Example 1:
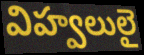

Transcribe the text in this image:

విహ్వలులై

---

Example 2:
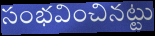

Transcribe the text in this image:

సంభవించినట్టు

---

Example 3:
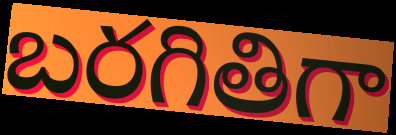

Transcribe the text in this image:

బరగితిగా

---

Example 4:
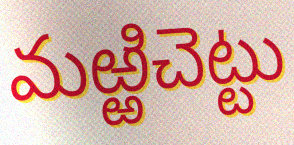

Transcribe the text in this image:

మఱ్ఱిచెట్టు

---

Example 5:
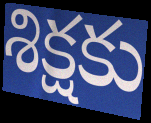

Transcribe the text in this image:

శిక్షకు